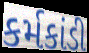
કર્મકાંડી